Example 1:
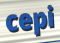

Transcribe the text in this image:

cepi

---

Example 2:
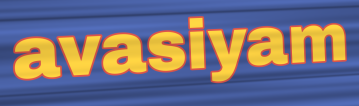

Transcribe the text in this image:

avasiyam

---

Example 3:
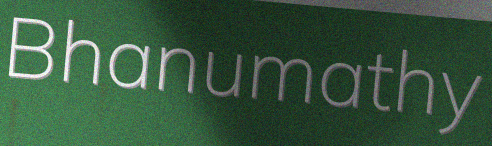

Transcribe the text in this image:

Bhanumathy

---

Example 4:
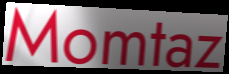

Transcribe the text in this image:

Momtaz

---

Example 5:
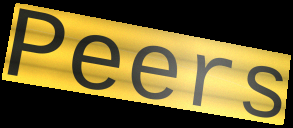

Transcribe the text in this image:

Peers